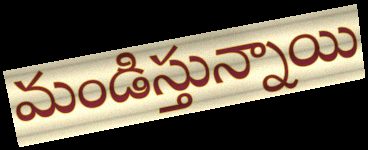
మండిస్తున్నాయి